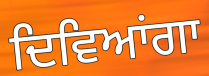
ਦਿਵਿਆਂਗਾ